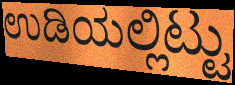
ಉಡಿಯಲ್ಲಿಟ್ಟು